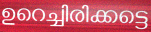
ഉറെച്ചിരിക്കട്ടെ